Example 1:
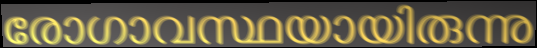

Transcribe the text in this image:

രോഗാവസ്ഥയായിരുന്നു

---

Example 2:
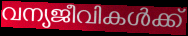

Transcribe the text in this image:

വന്യജീവികൾക്ക്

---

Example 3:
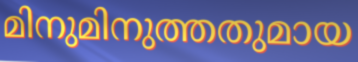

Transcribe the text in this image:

മിനുമിനുത്തതുമായ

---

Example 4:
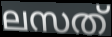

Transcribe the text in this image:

ലസത്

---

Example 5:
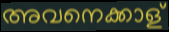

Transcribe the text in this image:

അവനെക്കാള്